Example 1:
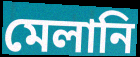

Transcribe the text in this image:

মেলানি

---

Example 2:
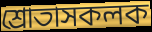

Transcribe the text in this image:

শ্ৰোতাসকলক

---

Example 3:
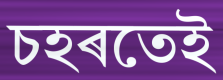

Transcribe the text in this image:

চহৰতেই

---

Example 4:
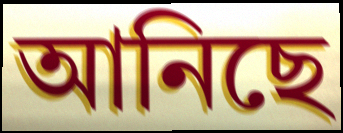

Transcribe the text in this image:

আনিছে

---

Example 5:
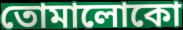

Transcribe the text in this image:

তোমালোকো